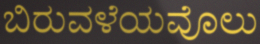
ಬಿರುವಳೆಯವೊಲು